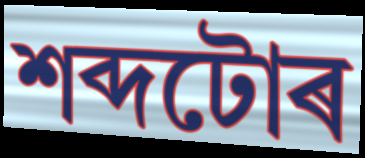
শব্দটোৰ